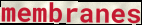
membranes